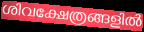
ശിവക്ഷേത്രങ്ങളിൽ